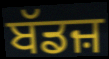
ਬੱਡਜ਼